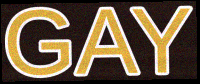
GAY